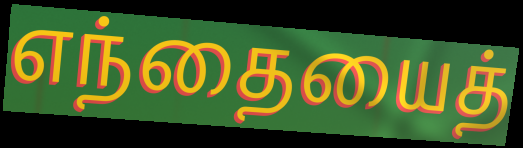
எந்தையைத்